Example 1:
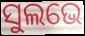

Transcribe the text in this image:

ସୁଲଭେ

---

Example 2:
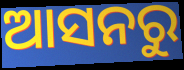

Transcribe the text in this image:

ଆସନରୁ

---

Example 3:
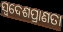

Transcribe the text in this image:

ସ୍ଵଦେଶପ୍ରାଣତା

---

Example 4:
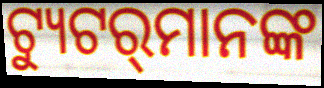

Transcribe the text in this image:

ଟ୍ୟୁଟର୍‍ମାନଙ୍କ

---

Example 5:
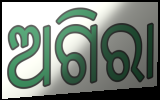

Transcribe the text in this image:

ଅଗିରା